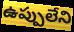
ఉప్పులేని